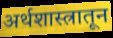
अर्थशास्त्रातून